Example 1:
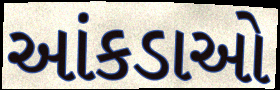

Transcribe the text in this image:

આંકડાઓ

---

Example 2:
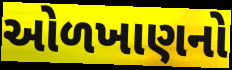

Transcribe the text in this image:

ઓળખાણનો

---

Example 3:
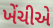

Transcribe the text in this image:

ખેંચીએ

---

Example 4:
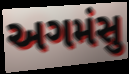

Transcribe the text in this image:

અગમંસુ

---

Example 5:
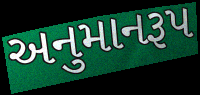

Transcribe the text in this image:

અનુમાનરૂપ